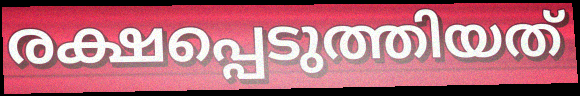
രക്ഷപ്പെടുത്തിയത്